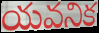
యవనిక